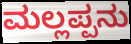
ಮಲ್ಲಪ್ಪನು